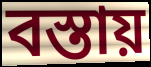
বস্তায়